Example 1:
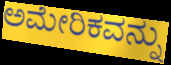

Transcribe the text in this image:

ಅಮೇರಿಕವನ್ನು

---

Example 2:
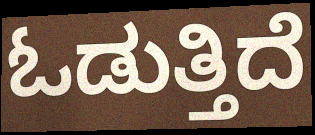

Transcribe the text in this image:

ಓಡುತ್ತಿದೆ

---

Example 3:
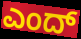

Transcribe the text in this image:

ಎಂದ್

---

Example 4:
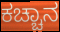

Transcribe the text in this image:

ಕಚ್ಚಾನ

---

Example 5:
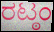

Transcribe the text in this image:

ರಟ್ಠಂ